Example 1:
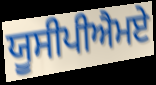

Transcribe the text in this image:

ਯੂਸੀਪੀਐਮਏ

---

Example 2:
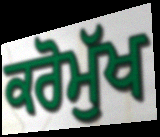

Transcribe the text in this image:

ਕਰੋਮੁੱਖ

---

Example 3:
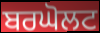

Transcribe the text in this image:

ਬਰਘੋਲਟ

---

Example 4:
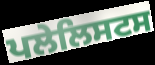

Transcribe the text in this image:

ਪਲੇਲਿਸਟਸ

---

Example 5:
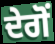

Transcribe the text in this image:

ਦੇਗੋਂ